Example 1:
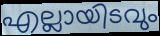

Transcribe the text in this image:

എല്ലായിടവും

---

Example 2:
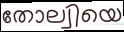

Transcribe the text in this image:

തോല്വിയെ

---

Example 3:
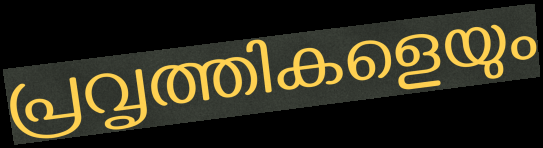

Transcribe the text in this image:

പ്രവൃത്തികളെയും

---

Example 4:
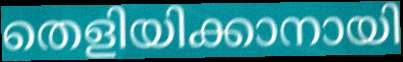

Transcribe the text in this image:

തെളിയിക്കാനായി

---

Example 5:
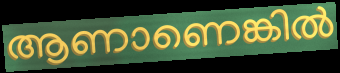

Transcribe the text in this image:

ആണാണെങ്കിൽ